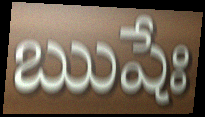
ఋషేః